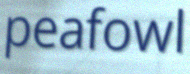
peafowl